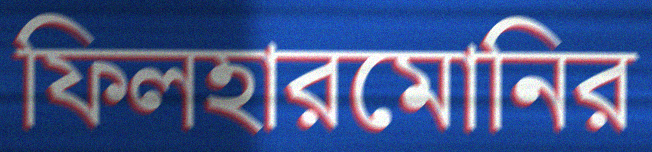
ফিলহারমোনির